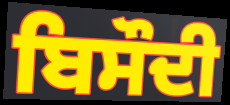
ਬਿਸੌਦੀ